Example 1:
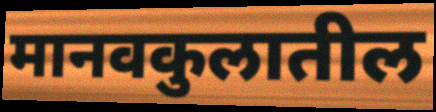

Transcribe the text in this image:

मानवकुलातील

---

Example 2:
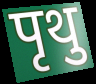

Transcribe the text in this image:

पृथु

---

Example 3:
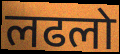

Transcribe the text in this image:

लढलो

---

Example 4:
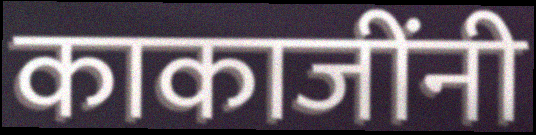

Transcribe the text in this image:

काकाजींनी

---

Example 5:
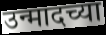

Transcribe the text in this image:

उन्मादच्या